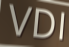
VDI